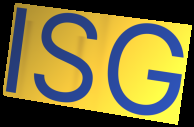
ISG